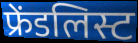
फ्रेंडलिस्ट